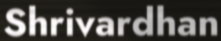
Shrivardhan